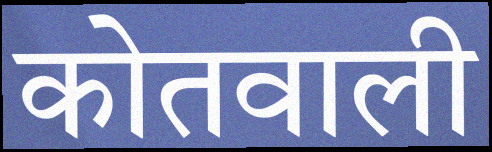
कोतवाली